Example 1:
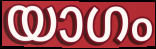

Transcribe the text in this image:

യാഗം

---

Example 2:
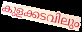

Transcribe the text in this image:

കുളക്കടവിലും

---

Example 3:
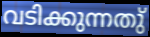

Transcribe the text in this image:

വടിക്കുന്നതു്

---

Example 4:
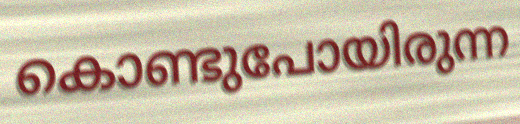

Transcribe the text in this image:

കൊണ്ടുപോയിരുന്ന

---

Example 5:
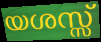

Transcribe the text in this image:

യശസ്സ്